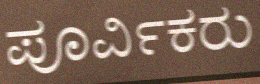
ಪೂರ್ವಿಕರು